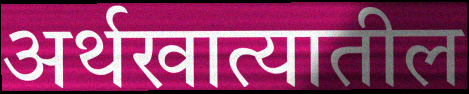
अर्थखात्यातील